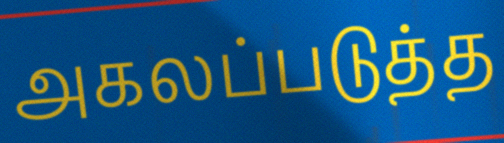
அகலப்படுத்த